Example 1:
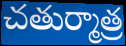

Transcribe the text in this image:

చతుర్మాత్ర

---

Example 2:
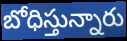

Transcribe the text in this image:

బోధిస్తున్నారు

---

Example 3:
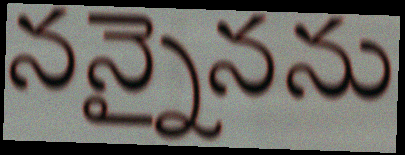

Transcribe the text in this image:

నన్నైనను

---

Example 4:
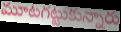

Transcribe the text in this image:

మూటగట్టుకున్నారు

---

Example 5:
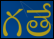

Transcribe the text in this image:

గతే